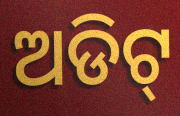
ଅଡିଟ୍